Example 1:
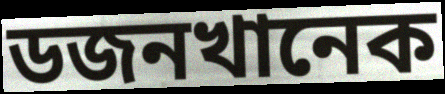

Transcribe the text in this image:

ডজনখানেক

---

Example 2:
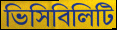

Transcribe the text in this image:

ভিসিবিলিটি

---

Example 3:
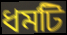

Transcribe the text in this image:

ধর্মটি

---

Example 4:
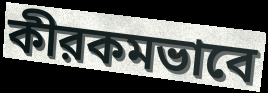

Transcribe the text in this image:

কীরকমভাবে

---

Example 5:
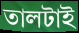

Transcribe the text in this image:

তালটাই